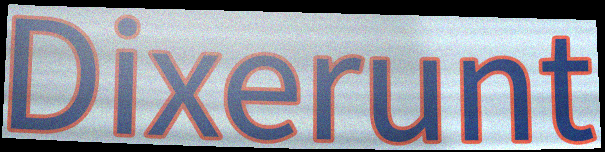
Dixerunt